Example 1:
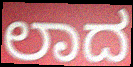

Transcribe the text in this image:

ಲಾದ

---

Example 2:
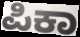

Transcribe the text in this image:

ಪಿಕಾ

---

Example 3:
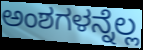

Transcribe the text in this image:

ಅಂಶಗಳನ್ನೆಲ್ಲ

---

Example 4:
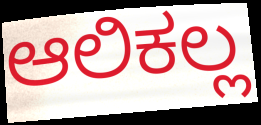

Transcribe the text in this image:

ಆಲಿಕಲ್ಲ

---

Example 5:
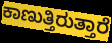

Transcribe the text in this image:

ಕಾಣುತ್ತಿರುತ್ತಾರೆ